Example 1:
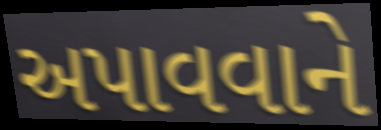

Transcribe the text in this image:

અપાવવાને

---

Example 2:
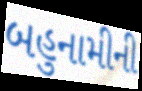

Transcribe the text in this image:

બહુનામીની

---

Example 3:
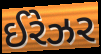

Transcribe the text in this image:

ઈરેઝર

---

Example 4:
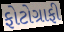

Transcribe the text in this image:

ફોટોગ્રાફી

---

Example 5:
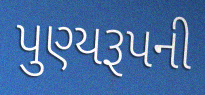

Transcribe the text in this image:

પુણ્યરૂપની